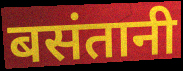
बसंतानी